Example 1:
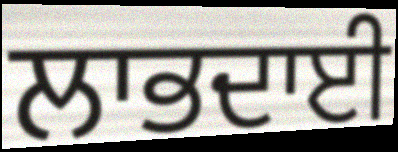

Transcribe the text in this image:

ਲਾਭਦਾਈ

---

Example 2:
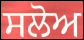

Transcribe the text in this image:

ਸਲੋਅ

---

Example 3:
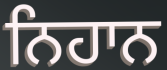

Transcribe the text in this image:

ਨਿਹਾਨ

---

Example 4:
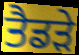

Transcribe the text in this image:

ਤੈਡੜੇ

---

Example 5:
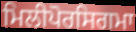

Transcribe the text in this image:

ਮਿਲੀਪੋਰਸਿਗਮਾ